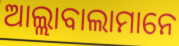
ଆଲ୍ଲାବାଲାମାନେ